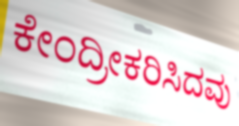
ಕೇಂದ್ರೀಕರಿಸಿದವು